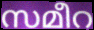
സമീറ